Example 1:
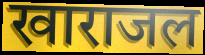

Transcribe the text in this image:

खाराजल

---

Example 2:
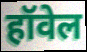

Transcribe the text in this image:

हॉवेल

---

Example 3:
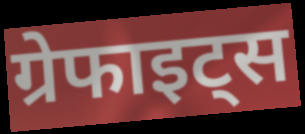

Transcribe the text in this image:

ग्रेफाइट्स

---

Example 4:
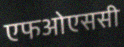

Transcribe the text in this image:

एफओएससी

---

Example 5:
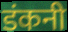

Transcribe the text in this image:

डंकनी